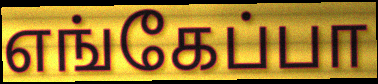
எங்கேப்பா